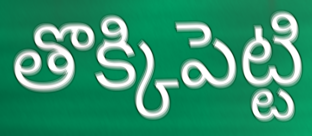
తొక్కిపెట్టి